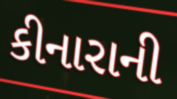
કીનારાની